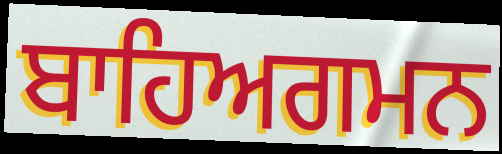
ਬਾਹਿਅਗਮਨ